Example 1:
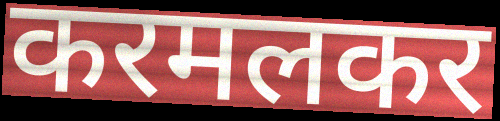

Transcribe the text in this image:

करमलकर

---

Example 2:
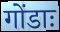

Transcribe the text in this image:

गोंडाः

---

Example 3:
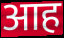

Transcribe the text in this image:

आह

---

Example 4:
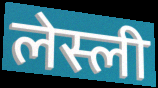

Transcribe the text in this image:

लेस्ली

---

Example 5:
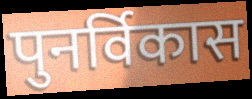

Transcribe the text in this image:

पुनर्विकास